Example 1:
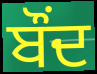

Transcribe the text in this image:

ਬੌਂਦ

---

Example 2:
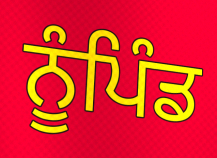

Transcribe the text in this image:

ਨੂੰਪਿੰਡ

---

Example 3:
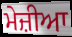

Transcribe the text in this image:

ਮੇਜ਼ੀਆ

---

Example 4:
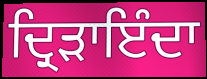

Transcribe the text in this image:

ਦ੍ਰਿੜਾਇੰਦਾ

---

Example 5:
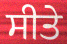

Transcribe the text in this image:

ਸੀਤੇ